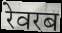
रेवरब